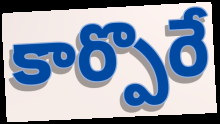
కార్పొరే